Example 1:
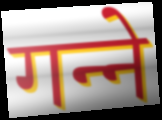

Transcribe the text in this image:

गन्‍ने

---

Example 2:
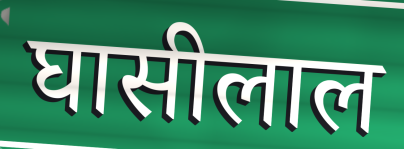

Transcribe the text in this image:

घासीलाल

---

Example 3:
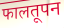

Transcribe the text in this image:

फालतूपन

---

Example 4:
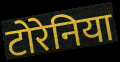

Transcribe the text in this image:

टोरेनिया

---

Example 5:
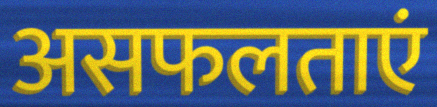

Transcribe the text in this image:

असफलताएं